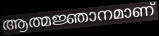
ആത്മജ്ഞാനമാണ്